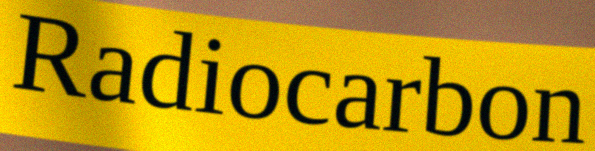
Radiocarbon